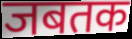
जबतक